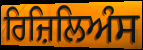
ਰਿਜ਼ਿਲਿਅੰਸ